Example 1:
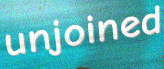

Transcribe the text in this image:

unjoined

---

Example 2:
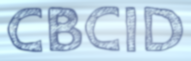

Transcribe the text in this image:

CBCID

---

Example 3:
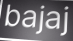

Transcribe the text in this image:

bajaj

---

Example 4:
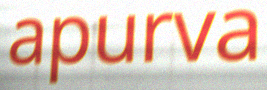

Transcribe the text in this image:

apurva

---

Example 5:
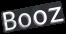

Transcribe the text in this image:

Booz